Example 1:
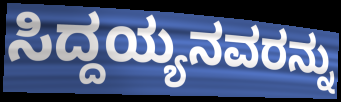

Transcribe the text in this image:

ಸಿದ್ದಯ್ಯನವರನ್ನು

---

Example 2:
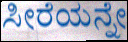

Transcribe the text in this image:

ಸೀರೆಯನ್ನೇ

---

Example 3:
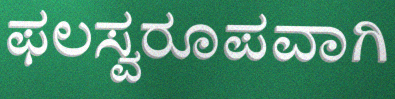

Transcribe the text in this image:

ಫಲಸ್ವರೂಪವಾಗಿ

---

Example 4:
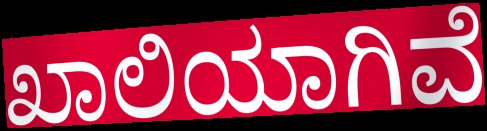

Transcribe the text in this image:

ಖಾಲಿಯಾಗಿವೆ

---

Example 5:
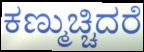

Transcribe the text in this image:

ಕಣ್ಮುಚ್ಚಿದರೆ